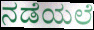
ನಡೆಯಲೆ